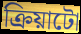
ক্ৰিয়াটো